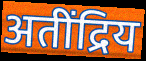
अतींद्रिय